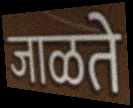
जाळते